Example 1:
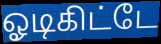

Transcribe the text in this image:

ஓடிகிட்டே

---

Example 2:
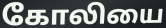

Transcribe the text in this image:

கோலியை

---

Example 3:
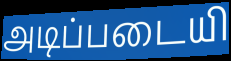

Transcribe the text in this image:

அடிப்படையி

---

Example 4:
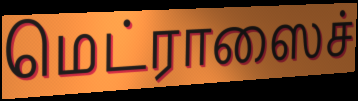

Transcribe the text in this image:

மெட்ராஸைச்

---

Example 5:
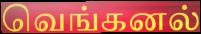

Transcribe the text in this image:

வெங்கனல்